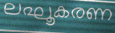
ലഘൂകരണ